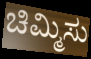
ಚಿಮ್ಮಿಸು